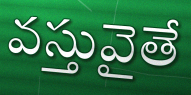
వస్తువైతే